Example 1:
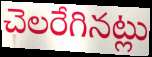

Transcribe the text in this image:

చెలరేగినట్లు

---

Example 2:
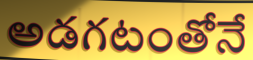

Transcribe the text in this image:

అడగటంతోనే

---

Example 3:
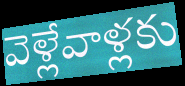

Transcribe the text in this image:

వెళ్లేవాళ్లకు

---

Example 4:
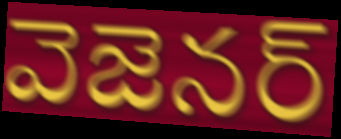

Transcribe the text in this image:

వెజెనర్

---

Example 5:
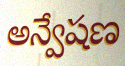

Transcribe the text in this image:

అన్వేషణ